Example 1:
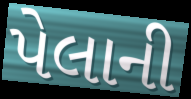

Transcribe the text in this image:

પેલાની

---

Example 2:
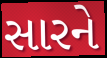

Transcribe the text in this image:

સારને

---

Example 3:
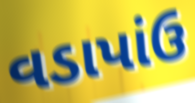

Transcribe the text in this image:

વડાપાંઉ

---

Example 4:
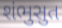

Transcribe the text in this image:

શંભુસુત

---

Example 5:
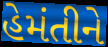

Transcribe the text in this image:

હેમંતીને